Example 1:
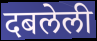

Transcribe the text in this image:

दबलेली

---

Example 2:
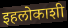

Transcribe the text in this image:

इहलोकाशी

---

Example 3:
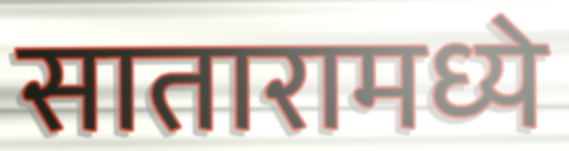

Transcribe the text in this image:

सातारामध्ये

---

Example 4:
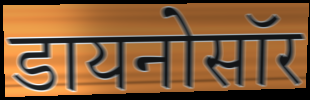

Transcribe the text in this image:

डायनोसॉर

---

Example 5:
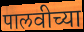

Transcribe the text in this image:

पालवीच्या